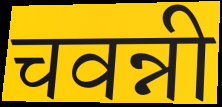
चवन्नी